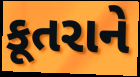
કૂતરાને